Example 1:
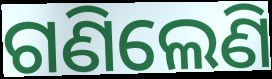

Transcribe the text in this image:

ଗଣିଲେଣି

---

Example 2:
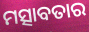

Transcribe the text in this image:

ମତ୍ସାବତାର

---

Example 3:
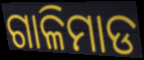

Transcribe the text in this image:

ଗାଳିମାଡ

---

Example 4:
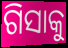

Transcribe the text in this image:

ଗିସାକୁ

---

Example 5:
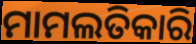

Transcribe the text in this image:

ମାମଲତିକାରି